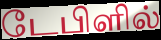
டேபிளில்